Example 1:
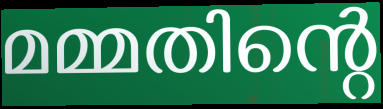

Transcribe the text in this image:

മമ്മതിന്റെ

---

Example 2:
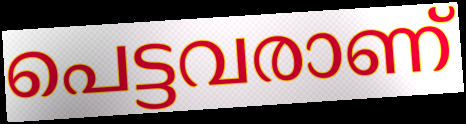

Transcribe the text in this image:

പെട്ടവരാണ്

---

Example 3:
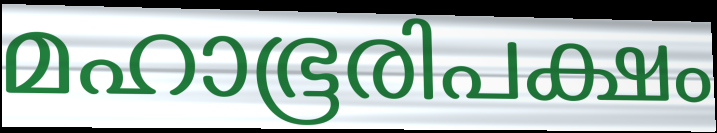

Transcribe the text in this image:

മഹാഭൂരിപക്ഷം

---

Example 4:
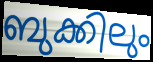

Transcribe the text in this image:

ബുക്കിലും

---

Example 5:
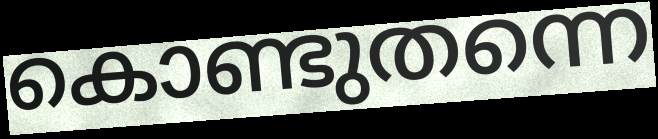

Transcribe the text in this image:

കൊണ്ടുതന്നെ